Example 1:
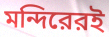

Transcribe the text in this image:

মন্দিরেরই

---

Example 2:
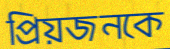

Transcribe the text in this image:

প্রিয়জনকে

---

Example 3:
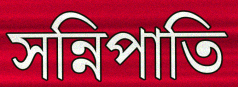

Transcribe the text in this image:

সন্নিপাতি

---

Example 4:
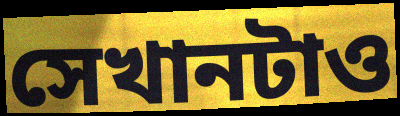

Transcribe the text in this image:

সেখানটাও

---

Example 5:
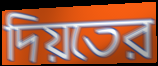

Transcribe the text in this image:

দিয়তের